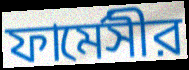
ফার্মেসীর